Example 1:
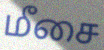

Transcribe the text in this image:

மீசை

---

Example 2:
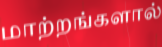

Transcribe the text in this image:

மாற்றங்களால்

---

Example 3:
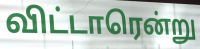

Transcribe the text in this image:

விட்டாரென்று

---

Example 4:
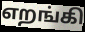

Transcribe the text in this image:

எறங்கி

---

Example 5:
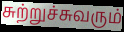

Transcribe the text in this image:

சுற்றுச்சுவரும்